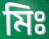
মিঃ